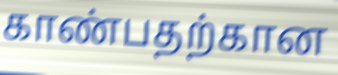
காண்பதற்கான